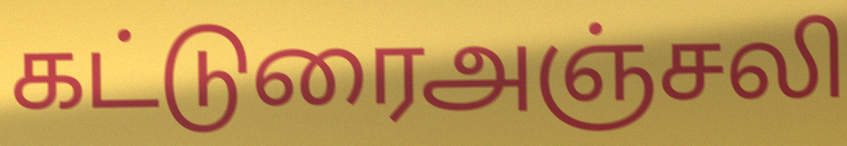
கட்டுரைஅஞ்சலி